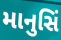
માનુસિં